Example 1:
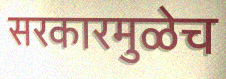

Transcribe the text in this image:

सरकारमुळेच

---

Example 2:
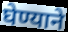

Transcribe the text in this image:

घेण्याने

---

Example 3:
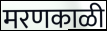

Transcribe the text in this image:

मरणकाळी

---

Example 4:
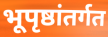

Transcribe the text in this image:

भूपृष्ठांतर्गत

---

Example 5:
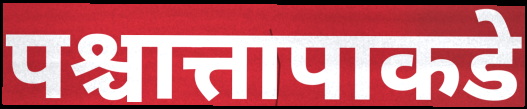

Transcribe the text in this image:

पश्चात्तापाकडे